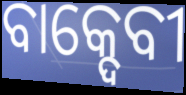
ବାକ୍ଦେବୀ